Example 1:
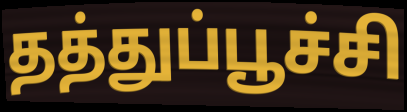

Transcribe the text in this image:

தத்துப்பூச்சி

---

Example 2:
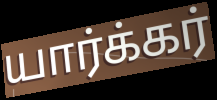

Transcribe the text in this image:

யார்க்கர்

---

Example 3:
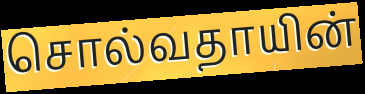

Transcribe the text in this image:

சொல்வதாயின்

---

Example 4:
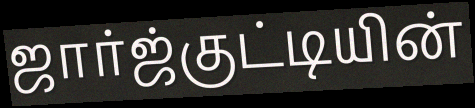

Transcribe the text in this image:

ஜார்ஜ்குட்டியின்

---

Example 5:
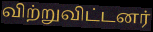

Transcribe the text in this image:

விற்றுவிட்டனர்